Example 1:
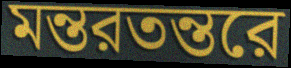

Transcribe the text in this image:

মন্তরতন্তরে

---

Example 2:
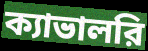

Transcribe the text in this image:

ক্যাভালরি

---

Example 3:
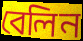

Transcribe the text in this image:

বেলিন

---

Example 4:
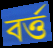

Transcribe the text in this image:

বর্ত্ত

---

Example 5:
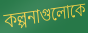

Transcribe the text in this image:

কল্পনাগুলোকে